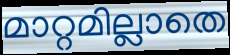
മാറ്റമില്ലാതെ